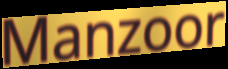
Manzoor